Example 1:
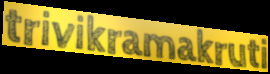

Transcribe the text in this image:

trivikramakruti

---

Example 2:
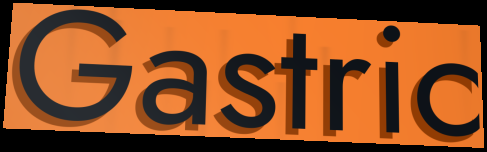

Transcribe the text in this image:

Gastric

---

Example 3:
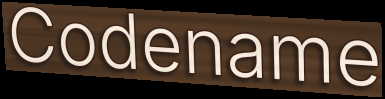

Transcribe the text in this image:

Codename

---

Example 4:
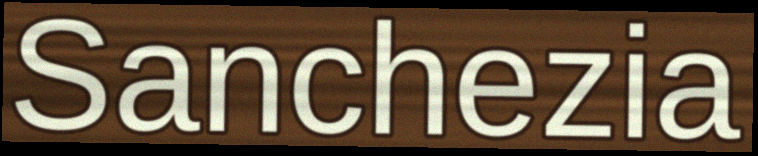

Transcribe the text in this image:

Sanchezia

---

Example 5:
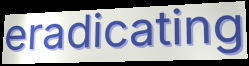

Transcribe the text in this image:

eradicating